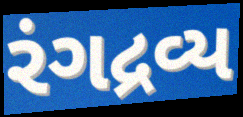
રંગદ્રવ્ય